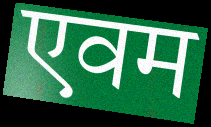
एवम